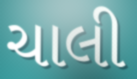
ચાલી